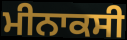
ਮੀਨਾਕਸੀ